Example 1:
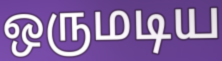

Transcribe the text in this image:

ஒருமடிய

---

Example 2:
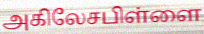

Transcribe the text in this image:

அகிலேசபிள்ளை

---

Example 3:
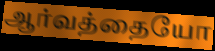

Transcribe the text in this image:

ஆர்வத்தையோ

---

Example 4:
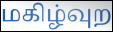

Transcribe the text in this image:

மகிழ்வுற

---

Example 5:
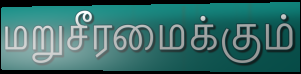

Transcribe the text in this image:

மறுசீரமைக்கும்